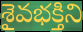
శైవభక్తిని